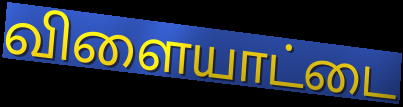
விளையாட்டை